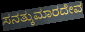
ಸನತ್ಕುಮಾರದೇವ